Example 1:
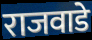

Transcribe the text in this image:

राजवाडे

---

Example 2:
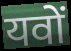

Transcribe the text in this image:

यवों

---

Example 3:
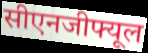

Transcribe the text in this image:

सीएनजीफ्यूल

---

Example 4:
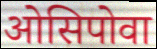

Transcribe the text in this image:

ओसिपोवा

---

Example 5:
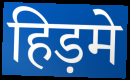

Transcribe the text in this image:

हिड़मे